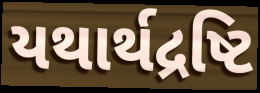
યથાર્થદ્રષ્ટિ